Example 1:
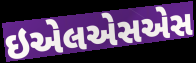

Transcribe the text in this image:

ઇએલએસએસ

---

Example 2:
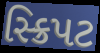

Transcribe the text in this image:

સ્ક્રિપટ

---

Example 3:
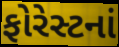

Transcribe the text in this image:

ફોરેસ્ટનાં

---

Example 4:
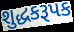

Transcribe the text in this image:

શુદ્ધકરૂપક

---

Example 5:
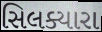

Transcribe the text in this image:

સિલક્યારા